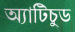
অ্যাটিচুড